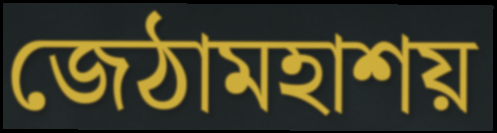
জেঠামহাশয়